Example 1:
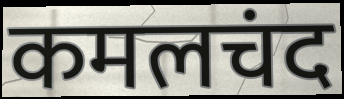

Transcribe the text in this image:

कमलचंद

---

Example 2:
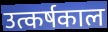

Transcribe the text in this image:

उत्कर्षकाल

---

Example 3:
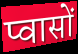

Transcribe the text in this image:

प्वासों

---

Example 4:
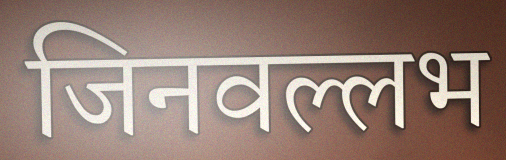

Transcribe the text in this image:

जिनवल्लभ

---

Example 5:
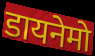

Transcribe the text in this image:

डायनेमो